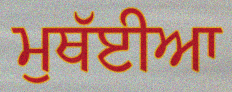
ਮੁਥੱਈਆ